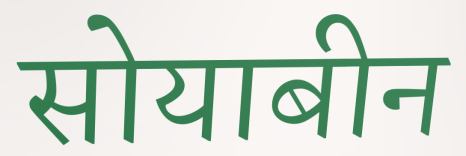
सोयाबीन